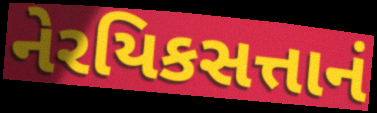
નેરયિકસત્તાનં